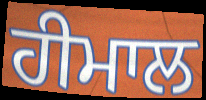
ਹੀਮਾਲ